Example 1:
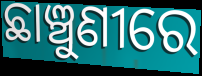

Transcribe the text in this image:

ଛାଞ୍ଚୁଣୀରେ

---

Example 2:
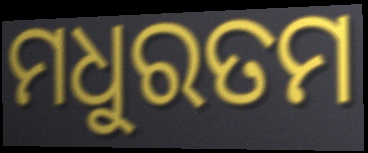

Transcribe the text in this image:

ମଧୁରତମ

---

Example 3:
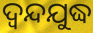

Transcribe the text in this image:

ଦ୍ୱନ୍ଦଯୁଦ୍ଧ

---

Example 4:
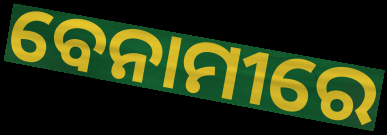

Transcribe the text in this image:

ବେନାମୀରେ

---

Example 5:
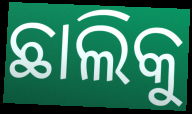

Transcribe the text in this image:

ଛାଲିକୁ